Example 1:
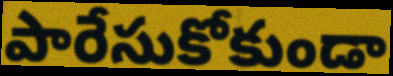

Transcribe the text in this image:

పారేసుకోకుండా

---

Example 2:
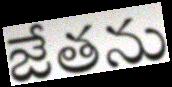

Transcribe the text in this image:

జేతను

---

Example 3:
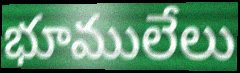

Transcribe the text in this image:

భూములేలు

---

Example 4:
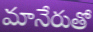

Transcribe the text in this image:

మానేరుతో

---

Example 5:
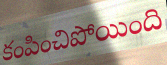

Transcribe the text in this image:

కంపించిపోయింది